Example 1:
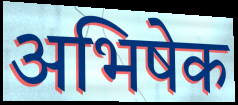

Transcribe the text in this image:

अभिषेक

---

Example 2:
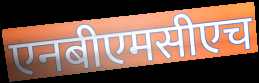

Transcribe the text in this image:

एनबीएमसीएच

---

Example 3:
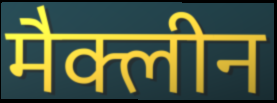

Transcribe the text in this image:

मैक्लीन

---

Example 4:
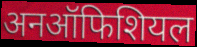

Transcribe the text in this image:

अनऑफिशियल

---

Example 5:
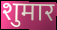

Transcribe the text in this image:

शुमार